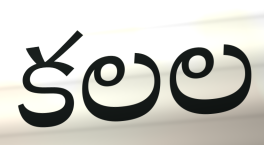
కలల